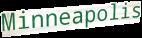
Minneapolis